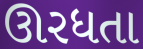
ઊરધતા